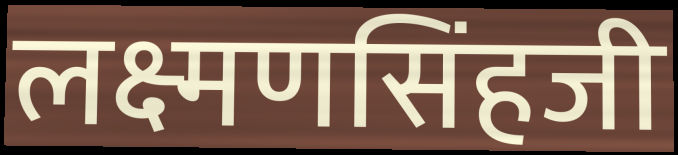
लक्ष्मणसिंहजी